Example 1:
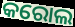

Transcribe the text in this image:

କରୋଲ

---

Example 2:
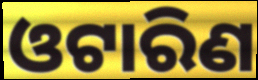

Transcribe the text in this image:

ଓଟାରିଣ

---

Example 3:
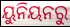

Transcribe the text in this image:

ୟୁନିୟନରୁ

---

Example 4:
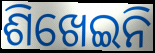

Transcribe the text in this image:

ଶିଖେଇନି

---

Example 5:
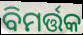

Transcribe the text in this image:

ବିମର୍ତ୍ତକ